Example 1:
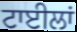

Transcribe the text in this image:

ਟਾਈਲਾਂ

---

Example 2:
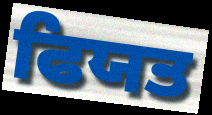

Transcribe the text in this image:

ਫਿਯਤ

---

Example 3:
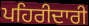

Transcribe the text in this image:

ਪਹਿਰੀਦਾਰੀ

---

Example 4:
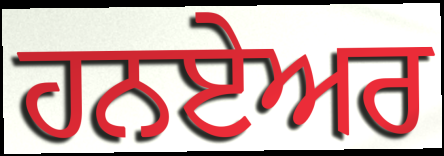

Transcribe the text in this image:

ਹਨਏਅਰ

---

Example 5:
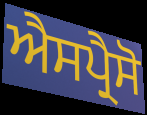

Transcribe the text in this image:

ਐਸਪ੍ਰੈਸੋ